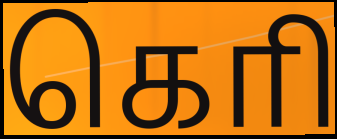
கெரி